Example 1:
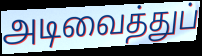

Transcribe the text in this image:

அடிவைத்துப்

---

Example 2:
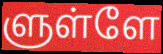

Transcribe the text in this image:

ளுள்ளே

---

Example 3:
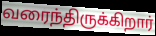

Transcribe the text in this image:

வரைந்திருக்கிறார்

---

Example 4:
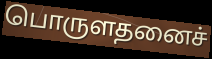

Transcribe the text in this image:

பொருளதனைச்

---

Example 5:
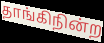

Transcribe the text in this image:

தாங்கிநின்ற